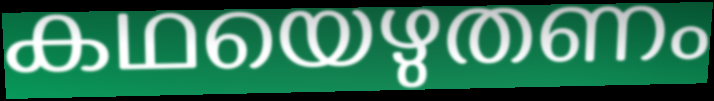
കഥയെഴുതണം